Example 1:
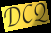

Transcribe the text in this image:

DCQ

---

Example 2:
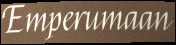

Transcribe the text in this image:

Emperumaan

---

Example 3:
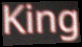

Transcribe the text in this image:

King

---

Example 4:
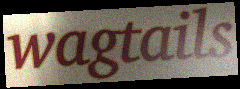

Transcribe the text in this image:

wagtails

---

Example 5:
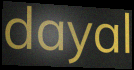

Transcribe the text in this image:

dayal